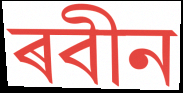
ৰবীন